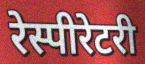
रेस्पीरेटरी